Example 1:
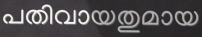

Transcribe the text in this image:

പതിവായതുമായ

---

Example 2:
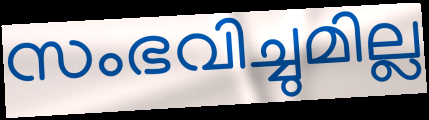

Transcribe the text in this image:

സംഭവിച്ചുമില്ല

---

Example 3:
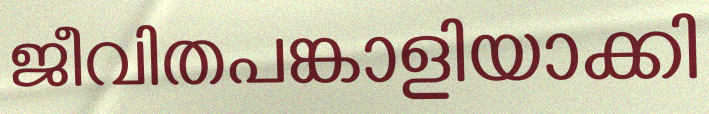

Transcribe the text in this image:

ജീവിതപങ്കാളിയാക്കി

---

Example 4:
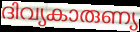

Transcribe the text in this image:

ദിവ്യകാരുണ്യ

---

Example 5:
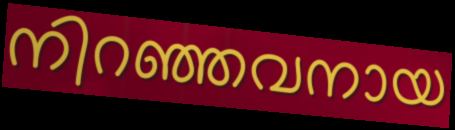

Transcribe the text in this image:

നിറഞ്ഞവനായ